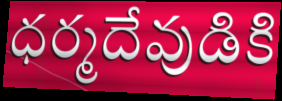
ధర్మదేవుడికి